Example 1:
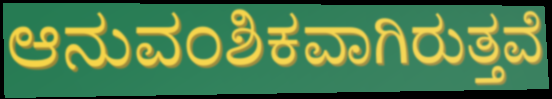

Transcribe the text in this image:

ಆನುವಂಶಿಕವಾಗಿರುತ್ತವೆ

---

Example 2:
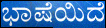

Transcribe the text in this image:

ಭಾಷೆಯಿದೆ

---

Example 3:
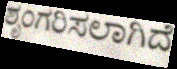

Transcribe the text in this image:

ಶೃಂಗರಿಸಲಾಗಿದೆ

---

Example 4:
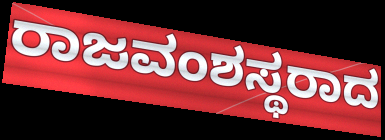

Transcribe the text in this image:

ರಾಜವಂಶಸ್ಥರಾದ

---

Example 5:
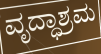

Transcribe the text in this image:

ವೃದ್ಧಾಶ್ರಮ